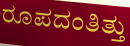
ರೂಪದಂತಿತ್ತು